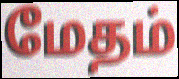
மேதம்